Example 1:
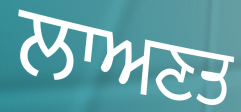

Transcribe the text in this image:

ਲਾਅਣਤ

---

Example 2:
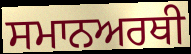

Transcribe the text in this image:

ਸਮਾਨਅਰਥੀ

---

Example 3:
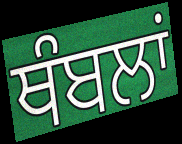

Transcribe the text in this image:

ਥੰਬਲਾਂ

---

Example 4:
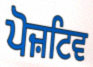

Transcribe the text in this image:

ਪੋਜ਼ਟਿਵ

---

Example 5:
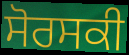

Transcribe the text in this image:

ਸੋਰਸਕੀ